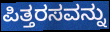
ಪಿತ್ತರಸವನ್ನು